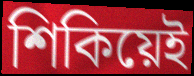
শিকিয়েই